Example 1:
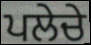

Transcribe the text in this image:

ਪਲੇਚੇ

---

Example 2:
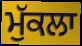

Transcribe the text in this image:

ਮੁੱਕਲਾ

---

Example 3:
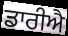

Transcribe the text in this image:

ਡਾਰੀਐ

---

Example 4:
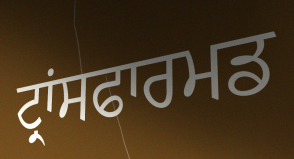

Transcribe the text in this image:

ਟ੍ਰਾਂਸਫਾਰਮਡ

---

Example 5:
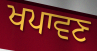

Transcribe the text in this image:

ਖਪਾਵਣ